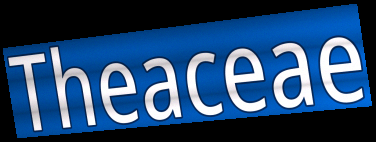
Theaceae